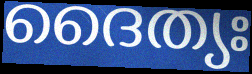
ദൈത്യഃ